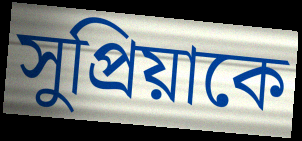
সুপ্রিয়াকে